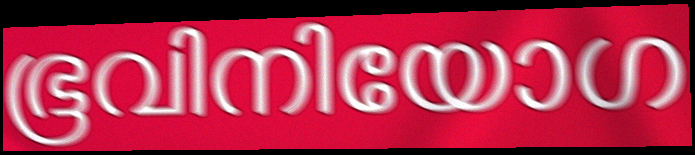
ഭൂവിനിയോഗ